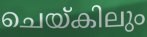
ചെയ്കിലും